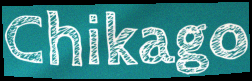
Chikago